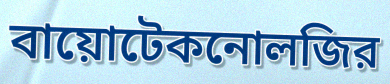
বায়োটেকনোলজির